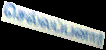
செல்லப்பனார்